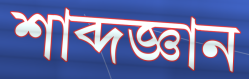
শাব্দজ্ঞান